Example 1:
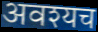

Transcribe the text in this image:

अवश्यच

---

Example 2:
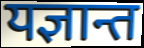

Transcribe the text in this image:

यज्ञान्त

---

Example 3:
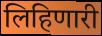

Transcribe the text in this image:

लिहिणारी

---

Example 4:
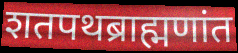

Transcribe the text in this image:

शतपथब्राह्मणांत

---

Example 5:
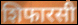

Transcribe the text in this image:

शिफारसी